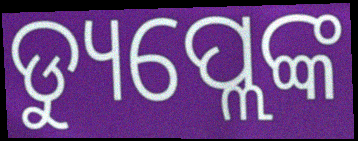
ଡ୍ୟୁପ୍ଲେଙ୍କ